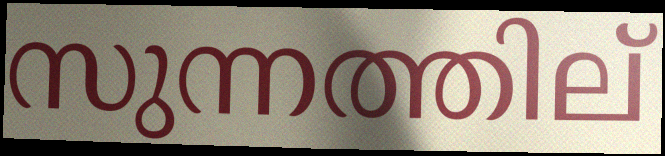
സുന്നത്തില്